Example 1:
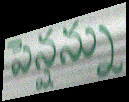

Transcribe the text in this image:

పెన్షన్ను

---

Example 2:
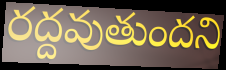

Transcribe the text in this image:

రద్దవుతుందని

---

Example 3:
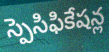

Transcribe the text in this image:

స్పెసిఫికేషన్ల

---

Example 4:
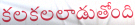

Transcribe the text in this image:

కలకలలాడుతోంది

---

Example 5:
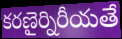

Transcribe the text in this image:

కరణైర్నిరీయతే